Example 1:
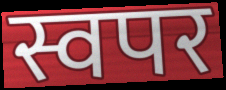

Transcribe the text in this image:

स्वपर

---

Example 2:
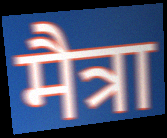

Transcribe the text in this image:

मैत्रा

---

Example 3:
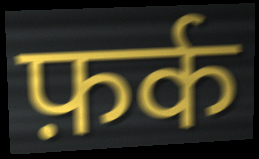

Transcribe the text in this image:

फ़र्क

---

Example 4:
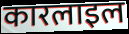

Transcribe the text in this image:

कारलाइल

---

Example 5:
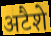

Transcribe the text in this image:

अटैशे